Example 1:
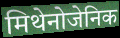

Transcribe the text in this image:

मिथेनोजेनिक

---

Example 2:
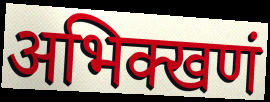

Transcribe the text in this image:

अभिक्खणं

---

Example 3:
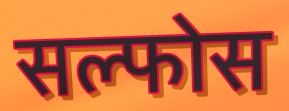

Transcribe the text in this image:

सल्फोस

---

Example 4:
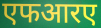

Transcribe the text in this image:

एफआरए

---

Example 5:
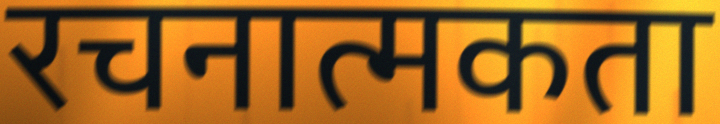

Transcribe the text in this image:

रचनात्मकता